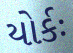
યોર્કઃ